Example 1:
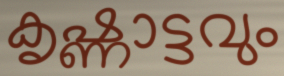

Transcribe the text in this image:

കൃഷ്ണാട്ടവും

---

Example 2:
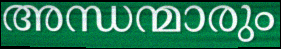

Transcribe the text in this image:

അന്ധന്മാരും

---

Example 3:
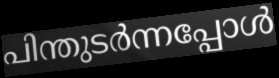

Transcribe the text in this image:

പിന്തുടർന്നപ്പോൾ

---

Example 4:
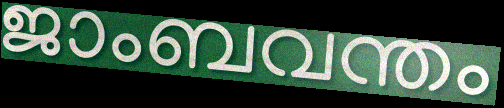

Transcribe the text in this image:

ജാംബവന്തം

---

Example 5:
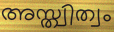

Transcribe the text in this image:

അസ്ത്വിത്വം